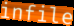
infile